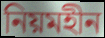
নিয়মহীন